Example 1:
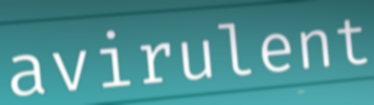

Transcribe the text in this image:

avirulent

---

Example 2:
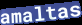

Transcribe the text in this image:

amaltas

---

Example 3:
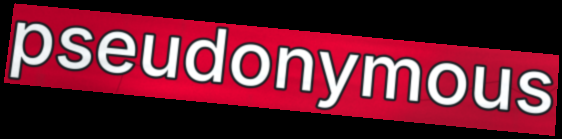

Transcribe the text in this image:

pseudonymous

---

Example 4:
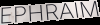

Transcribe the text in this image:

EPHRAIM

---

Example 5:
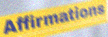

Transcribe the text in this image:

Affirmations